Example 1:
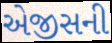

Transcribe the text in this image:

એજીસની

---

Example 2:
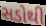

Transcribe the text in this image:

સડોથી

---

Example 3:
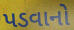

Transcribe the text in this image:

પડવાનો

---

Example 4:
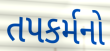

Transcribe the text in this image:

તપકર્મનો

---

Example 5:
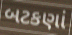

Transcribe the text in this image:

બટકણાં